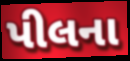
પીલના